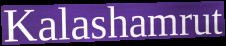
Kalashamrut